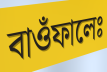
বাওঁফালেঃ